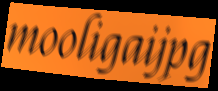
mooligaijpg